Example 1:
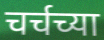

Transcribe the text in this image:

चर्चच्या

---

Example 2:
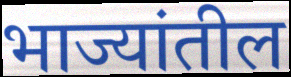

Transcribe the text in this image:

भाज्यांतील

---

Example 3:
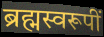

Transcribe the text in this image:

ब्रह्मस्वरूपीं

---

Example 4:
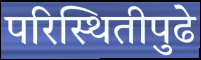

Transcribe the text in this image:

परिस्थितीपुढे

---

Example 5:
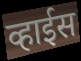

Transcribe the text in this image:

व्हाईस